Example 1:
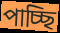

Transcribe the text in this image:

পাচ্ছি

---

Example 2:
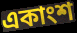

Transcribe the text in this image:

একাংশ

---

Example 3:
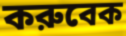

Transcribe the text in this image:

করুবেক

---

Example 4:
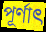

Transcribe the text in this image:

পূর্ণাৎ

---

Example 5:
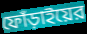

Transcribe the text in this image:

ফোঁড়াইয়ের